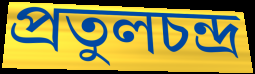
প্রতুলচন্দ্র